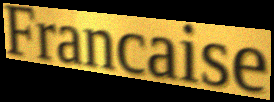
Francaise